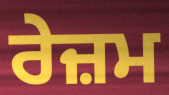
ਰੇਜ਼ਮ